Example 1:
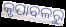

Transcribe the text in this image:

କୃପାବଳରୁ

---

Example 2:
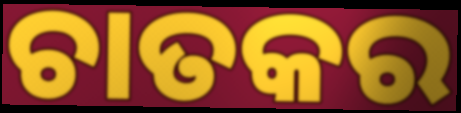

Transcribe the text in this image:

ଚାତକର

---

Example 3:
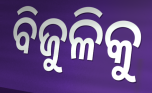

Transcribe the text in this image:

ବିଜୁଳିକୁ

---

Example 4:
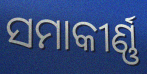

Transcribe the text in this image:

ସମାକୀର୍ଣ୍ଣ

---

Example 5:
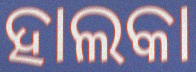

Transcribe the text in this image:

ହାଲକା